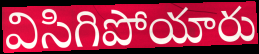
విసిగిపోయారు